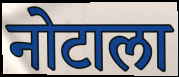
नोटाला